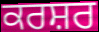
ਕਰਸ਼ਰ